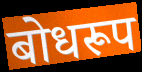
बोधरूप